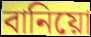
বানিয়ো